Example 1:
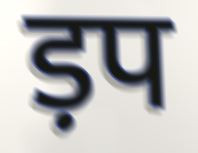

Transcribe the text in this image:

ड़प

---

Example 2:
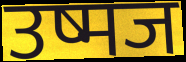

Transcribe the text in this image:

उष्मज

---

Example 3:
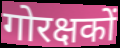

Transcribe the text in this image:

गोरक्षकों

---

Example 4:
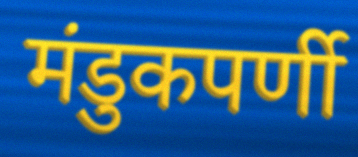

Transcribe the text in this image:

मंडुकपर्णी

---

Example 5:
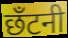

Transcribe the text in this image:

छँटनी